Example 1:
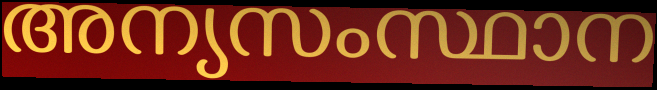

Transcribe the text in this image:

അന്യസംസ്ഥാന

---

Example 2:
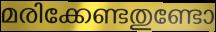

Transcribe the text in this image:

മരിക്കേണ്ടതുണ്ടോ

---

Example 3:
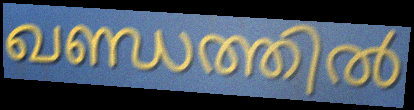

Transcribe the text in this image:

ഖണ്ഡത്തിൽ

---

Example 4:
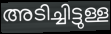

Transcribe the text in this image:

അടിച്ചിട്ടുള്ള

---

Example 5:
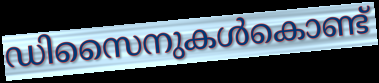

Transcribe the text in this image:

ഡിസൈനുകൾകൊണ്ട്